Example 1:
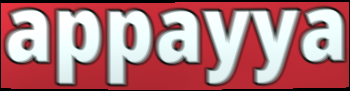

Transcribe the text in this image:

appayya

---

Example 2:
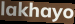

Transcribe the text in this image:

lakhayo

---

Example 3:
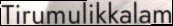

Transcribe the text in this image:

Tirumulikkalam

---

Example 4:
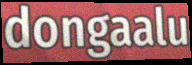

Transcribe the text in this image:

dongaalu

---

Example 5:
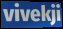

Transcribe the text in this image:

vivekji